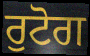
ਰੁਟੋਗ